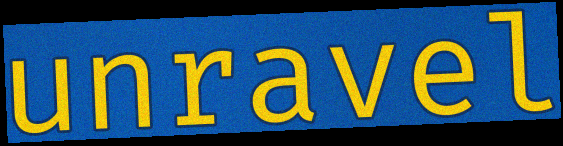
unravel